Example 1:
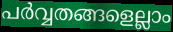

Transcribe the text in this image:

പർവ്വതങ്ങളെല്ലാം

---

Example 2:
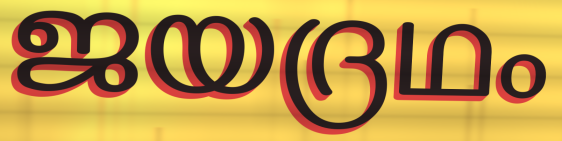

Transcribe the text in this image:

ജയദ്രഥം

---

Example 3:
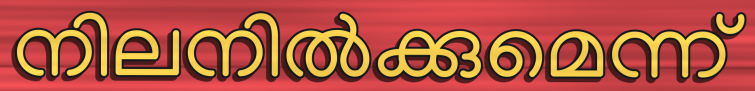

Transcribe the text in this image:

നിലനിൽക്കുമെന്ന്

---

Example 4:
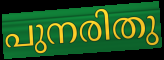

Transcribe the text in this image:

പുനരിതു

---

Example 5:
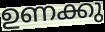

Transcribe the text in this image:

ഉണക്കു